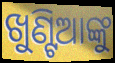
ଖୁଣ୍ଟିଆଙ୍କୁ